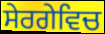
ਸੇਰਗੇਵਿਚ